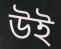
উই